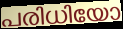
പരിധിയോ